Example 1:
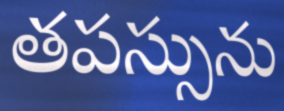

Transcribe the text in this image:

తపస్సును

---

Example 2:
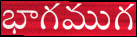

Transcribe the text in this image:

భాగముగ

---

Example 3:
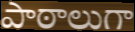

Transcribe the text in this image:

పాఠాలుగా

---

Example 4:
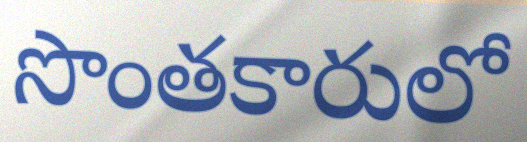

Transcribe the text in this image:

సొంతకారులో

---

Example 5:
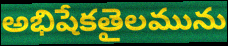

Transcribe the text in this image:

అభిషేకతైలమును